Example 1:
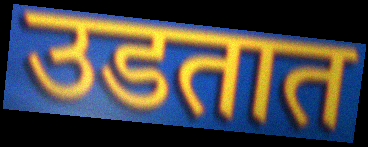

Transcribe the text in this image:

उडतात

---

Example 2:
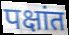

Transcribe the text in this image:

पक्षांत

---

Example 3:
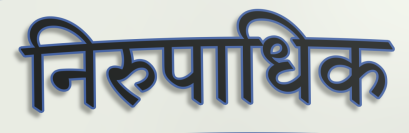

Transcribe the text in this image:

निरुपाधिक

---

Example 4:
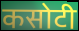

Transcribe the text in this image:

कसोटी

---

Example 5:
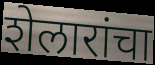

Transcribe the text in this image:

शेलारांचा